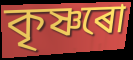
কৃষ্ণৰো